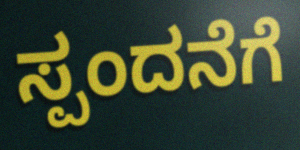
ಸ್ಪಂದನೆಗೆ